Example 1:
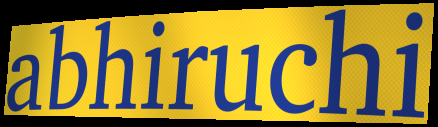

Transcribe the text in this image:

abhiruchi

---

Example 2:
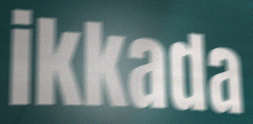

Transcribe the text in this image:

ikkada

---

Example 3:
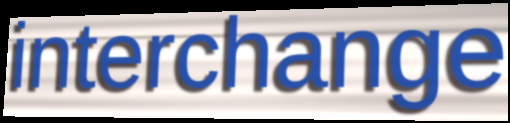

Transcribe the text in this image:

interchange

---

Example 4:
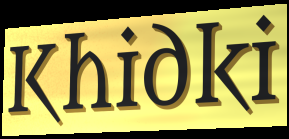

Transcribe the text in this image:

Khidki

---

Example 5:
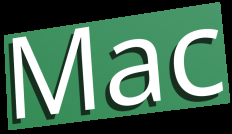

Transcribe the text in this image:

Mac